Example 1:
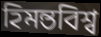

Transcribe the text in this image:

হিমন্তবিশ্ব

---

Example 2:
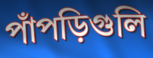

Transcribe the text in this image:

পাঁপড়িগুলি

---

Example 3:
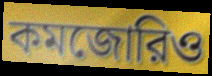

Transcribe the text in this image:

কমজোরিও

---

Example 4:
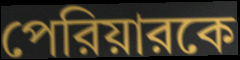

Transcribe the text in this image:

পেরিয়ারকে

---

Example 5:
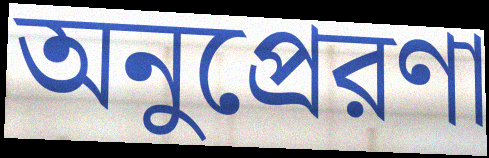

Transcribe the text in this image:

অনুপ্রেরণা